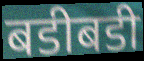
बडीबडी